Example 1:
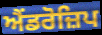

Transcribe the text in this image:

ਐਂਡਰੋਜ਼ਿਪ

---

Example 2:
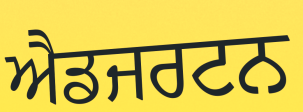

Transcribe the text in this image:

ਐਡਜਰਟਨ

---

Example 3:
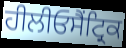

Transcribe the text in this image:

ਹੀਲੀਓਸੈਂਟ੍ਰਿਕ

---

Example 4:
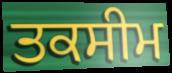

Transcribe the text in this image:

ਤਕਸੀਮ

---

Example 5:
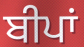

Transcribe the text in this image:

ਬੀਪਾਂ